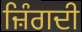
ਜ਼ਿੰਗਦੀ